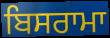
ਬਿਸਰਾਮਾ